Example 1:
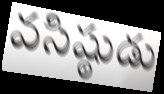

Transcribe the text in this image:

వసిష్ఠుడు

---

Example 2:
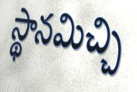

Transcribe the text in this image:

స్థానమిచ్చి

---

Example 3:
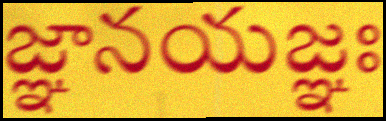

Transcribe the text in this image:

జ్ఞానయజ్ఞః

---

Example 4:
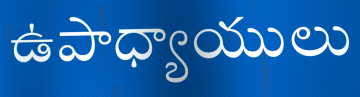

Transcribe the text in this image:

ఉపాధ్యాయులు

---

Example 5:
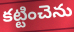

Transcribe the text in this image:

కట్టించెను